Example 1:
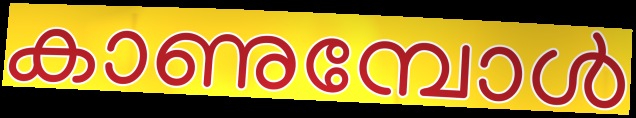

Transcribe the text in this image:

കാണുമ്പോൾ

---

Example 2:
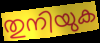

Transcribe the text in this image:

തുനിയുക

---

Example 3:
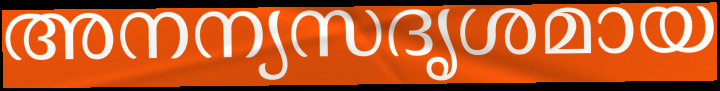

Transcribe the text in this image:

അനന്യസദൃശമായ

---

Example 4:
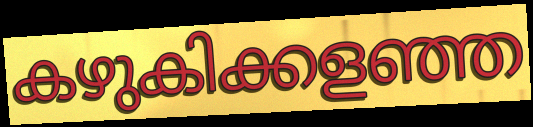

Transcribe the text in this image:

കഴുകിക്കളഞ്ഞ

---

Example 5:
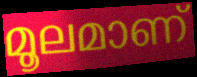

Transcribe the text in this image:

മൂലമാണ്